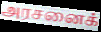
அரசனைக்